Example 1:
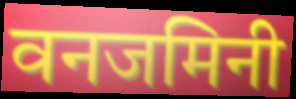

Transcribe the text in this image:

वनजमिनी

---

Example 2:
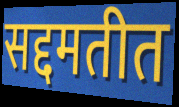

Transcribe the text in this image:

सद्दमतीत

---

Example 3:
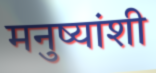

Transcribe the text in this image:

मनुष्यांशी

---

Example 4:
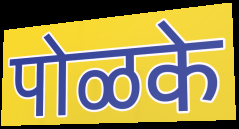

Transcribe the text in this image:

पोळके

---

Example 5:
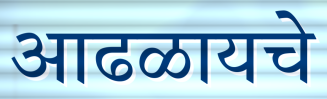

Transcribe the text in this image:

आढळायचे